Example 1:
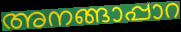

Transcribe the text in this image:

അനങ്ങാപ്പാറ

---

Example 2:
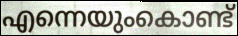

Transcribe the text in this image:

എന്നെയുംകൊണ്ട്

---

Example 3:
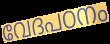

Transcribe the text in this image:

വേദപഠനം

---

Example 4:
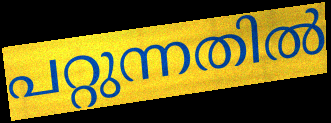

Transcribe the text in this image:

പറ്റുന്നതിൽ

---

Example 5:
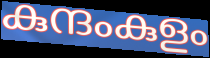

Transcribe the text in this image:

കുന്ദംകുളം